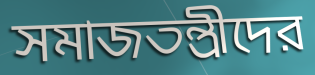
সমাজতন্ত্রীদের